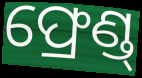
ଫ୍ରେଣ୍ଡ୍